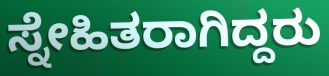
ಸ್ನೇಹಿತರಾಗಿದ್ದರು